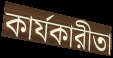
কার্যকারীতা